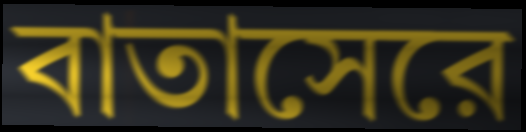
বাতাসেরে